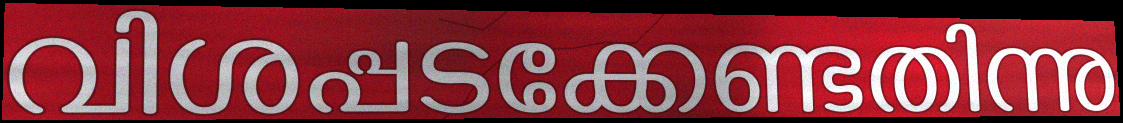
വിശപ്പടക്കേണ്ടതിന്നു